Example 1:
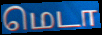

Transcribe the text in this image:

மெடா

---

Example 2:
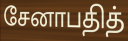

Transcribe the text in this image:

சேனாபதித்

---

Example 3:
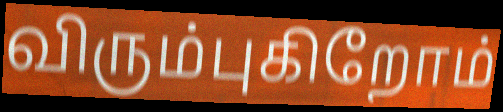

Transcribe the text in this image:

விரும்புகிறோம்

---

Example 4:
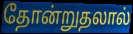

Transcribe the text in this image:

தோன்றுதலால்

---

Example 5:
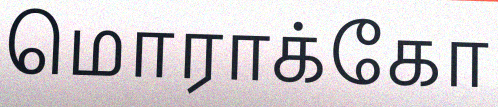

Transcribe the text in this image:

மொராக்கோ